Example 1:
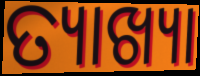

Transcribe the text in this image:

ତ୍ୟାଖ୍ୟା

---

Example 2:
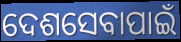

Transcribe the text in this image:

ଦେଶସେବାପାଇଁ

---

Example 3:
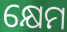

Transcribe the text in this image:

କ୍ଷେମ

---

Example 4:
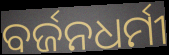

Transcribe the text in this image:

ବର୍ଜନଧର୍ମୀ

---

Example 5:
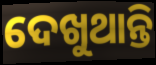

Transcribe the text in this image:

ଦେଖୁଥାନ୍ତି